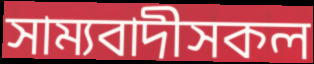
সাম্যবাদীসকল